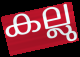
കല്ലു